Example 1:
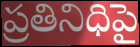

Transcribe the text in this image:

ప్రతినిధిపై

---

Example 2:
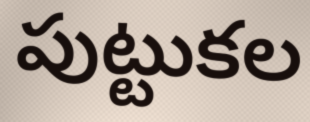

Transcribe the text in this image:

పుట్టుకల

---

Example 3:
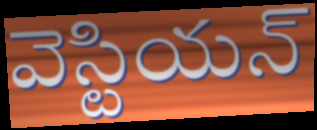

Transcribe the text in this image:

వెస్టియన్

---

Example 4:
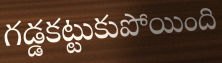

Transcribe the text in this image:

గడ్డకట్టుకుపోయింది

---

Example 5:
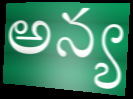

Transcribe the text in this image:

అన్య